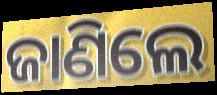
ଜାଣିଲେ